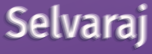
Selvaraj